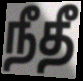
நீதீ